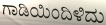
ಗಾಡಿಯಿಂದಿಳಿದು